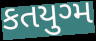
કતયુગ્મ